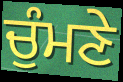
ਚੁੰਮਣੇ